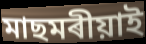
মাছমৰীয়াই